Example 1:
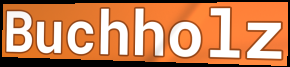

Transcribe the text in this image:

Buchholz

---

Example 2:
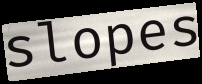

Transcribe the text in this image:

slopes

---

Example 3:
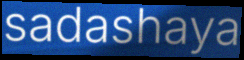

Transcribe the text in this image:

sadashaya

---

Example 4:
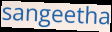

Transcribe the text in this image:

sangeetha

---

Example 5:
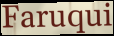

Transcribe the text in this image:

Faruqui